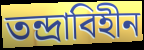
তন্দ্রাবিহীন